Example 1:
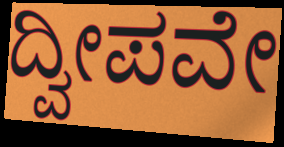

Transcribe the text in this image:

ದ್ವೀಪವೇ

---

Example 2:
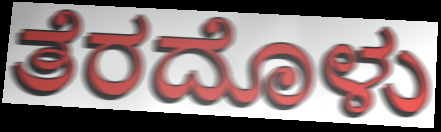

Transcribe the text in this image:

ತೆರದೊಳು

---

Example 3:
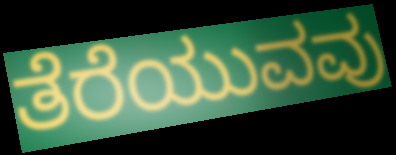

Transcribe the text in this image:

ತೆರೆಯುವವು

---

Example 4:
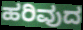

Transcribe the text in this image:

ಹರಿವುದ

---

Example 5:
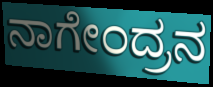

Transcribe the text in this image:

ನಾಗೇಂದ್ರನ